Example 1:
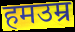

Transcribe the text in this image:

हमउम्र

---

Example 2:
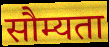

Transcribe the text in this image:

सौम्यता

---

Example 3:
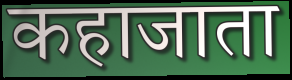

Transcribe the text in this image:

कहाजाता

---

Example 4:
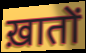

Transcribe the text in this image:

ख़ातों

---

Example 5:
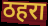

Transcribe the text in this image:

ठहरा